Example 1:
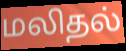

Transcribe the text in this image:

மலிதல்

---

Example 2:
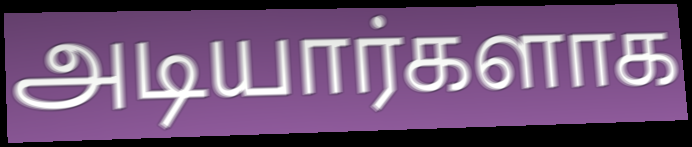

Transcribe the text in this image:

அடியார்களாக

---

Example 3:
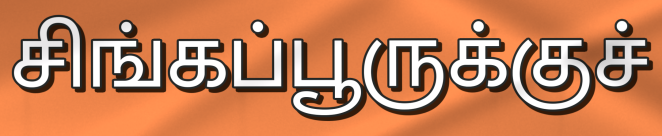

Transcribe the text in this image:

சிங்கப்பூருக்குச்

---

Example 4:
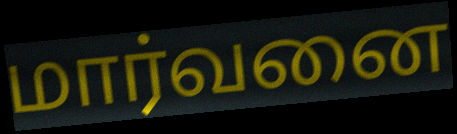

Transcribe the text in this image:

மார்வனை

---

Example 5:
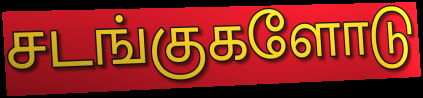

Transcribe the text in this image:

சடங்குகளோடு